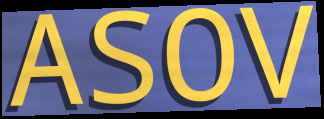
ASOV